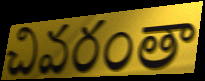
చివరంతా